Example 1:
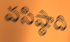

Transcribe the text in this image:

వసిష్ఠాది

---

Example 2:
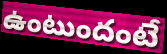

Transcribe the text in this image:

ఉంటుందంటే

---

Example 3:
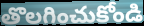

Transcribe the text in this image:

తొలగించుకోండి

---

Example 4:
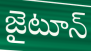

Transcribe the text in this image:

జైటూన్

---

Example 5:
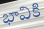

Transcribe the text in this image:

భావికి